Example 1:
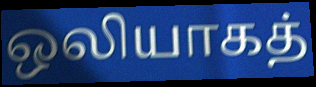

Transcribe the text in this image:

ஒலியாகத்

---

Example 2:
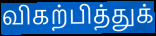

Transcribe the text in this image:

விகற்பித்துக்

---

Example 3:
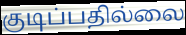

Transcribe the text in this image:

குடிப்பதில்லை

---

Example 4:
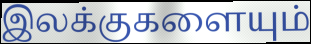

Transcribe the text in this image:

இலக்குகளையும்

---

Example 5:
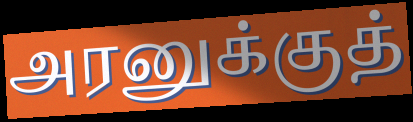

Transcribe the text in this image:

அரனுக்குத்